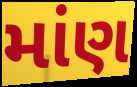
માંણ